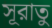
সূরাতু